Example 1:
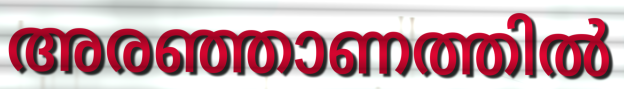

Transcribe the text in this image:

അരഞ്ഞാണത്തിൽ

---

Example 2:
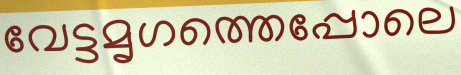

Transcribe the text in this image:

വേട്ടമൃഗത്തെപ്പോലെ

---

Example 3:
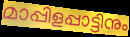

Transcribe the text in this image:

മാപ്പിളപ്പാട്ടിനും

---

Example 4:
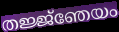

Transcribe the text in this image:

തജ്ജ്ഞേയം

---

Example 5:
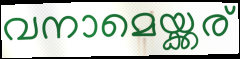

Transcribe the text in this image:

വനാമെയ്ക്കര്